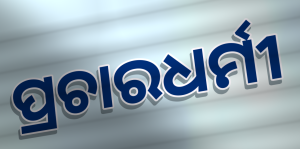
ପ୍ରଚାରଧର୍ମୀ